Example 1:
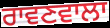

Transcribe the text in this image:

ਰਾਵਣਵਾਲਾ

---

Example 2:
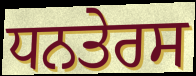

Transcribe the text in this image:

ਧਨਤੇਰਸ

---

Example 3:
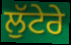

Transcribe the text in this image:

ਲੁੱਟੇਰੇ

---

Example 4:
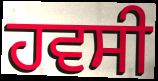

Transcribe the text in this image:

ਹਵਸੀ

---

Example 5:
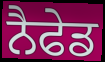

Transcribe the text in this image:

ਨੈਫੇਡ